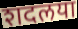
शदलया